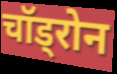
चॉड्रोन